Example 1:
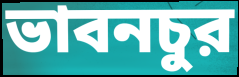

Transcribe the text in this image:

ভাবনচুর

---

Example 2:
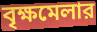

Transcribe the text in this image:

বৃক্ষমেলার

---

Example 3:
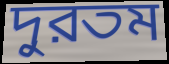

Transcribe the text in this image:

দুরতম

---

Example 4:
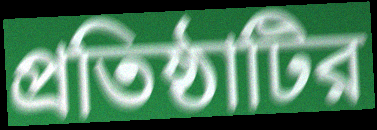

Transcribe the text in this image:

প্রতিষ্ঠাটির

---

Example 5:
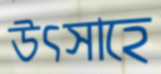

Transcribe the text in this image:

উৎসাহে